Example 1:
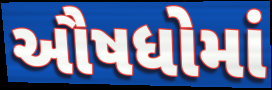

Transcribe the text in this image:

ઔષધોમાં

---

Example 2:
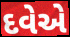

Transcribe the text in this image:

દવેએ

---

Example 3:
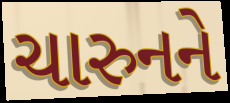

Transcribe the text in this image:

ચારુનને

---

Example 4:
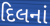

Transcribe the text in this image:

દિલનાં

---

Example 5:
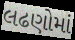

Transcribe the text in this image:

લઢણોમાં